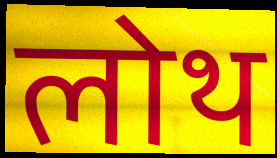
लोथ